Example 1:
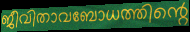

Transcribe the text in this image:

ജീവിതാവബോധത്തിന്റെ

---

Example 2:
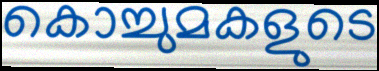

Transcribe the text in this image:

കൊച്ചുമകളുടെ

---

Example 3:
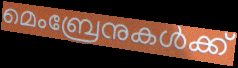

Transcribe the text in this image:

മെംബ്രേനുകൾക്ക്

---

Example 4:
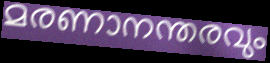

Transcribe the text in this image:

മരണാനന്തരവും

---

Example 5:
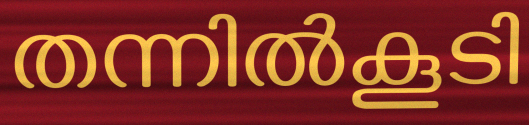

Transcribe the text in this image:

തന്നിൽകൂടി